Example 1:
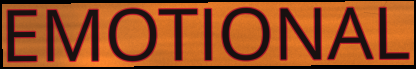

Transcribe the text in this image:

EMOTIONAL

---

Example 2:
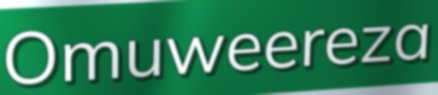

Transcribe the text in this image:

Omuweereza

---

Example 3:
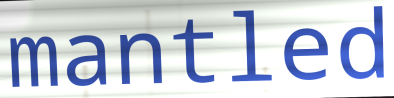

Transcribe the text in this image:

mantled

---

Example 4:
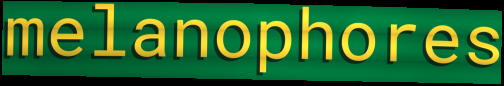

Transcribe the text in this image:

melanophores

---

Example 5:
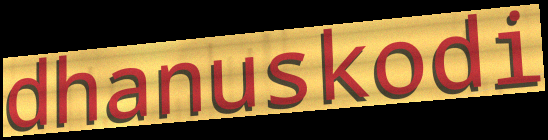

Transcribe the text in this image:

dhanuskodi